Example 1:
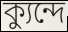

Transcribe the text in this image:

ক্যুন্দে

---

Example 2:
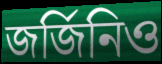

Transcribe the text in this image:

জর্জিনিও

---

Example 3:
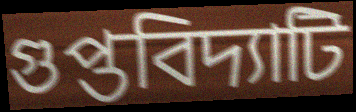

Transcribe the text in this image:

গুপ্তবিদ্যাটি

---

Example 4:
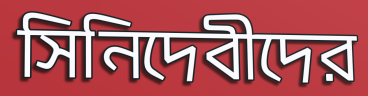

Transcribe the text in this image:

সিনিদেবীদের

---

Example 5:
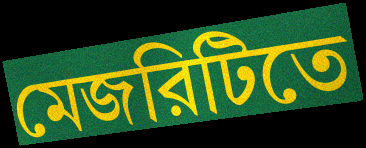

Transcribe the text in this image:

মেজরিটিতে